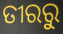
ତୀରରୁ